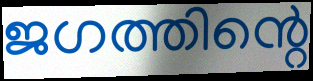
ജഗത്തിന്റെ